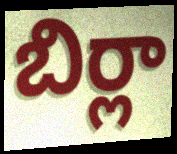
బిర్లా